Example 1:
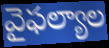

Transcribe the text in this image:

వైఫల్యాల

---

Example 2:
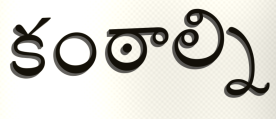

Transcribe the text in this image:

కంఠాల్ని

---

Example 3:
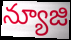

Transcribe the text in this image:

న్యూజి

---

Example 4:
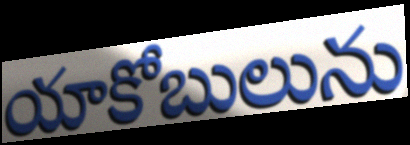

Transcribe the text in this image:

యాకోబులును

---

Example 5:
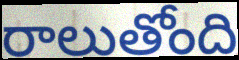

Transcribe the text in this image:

రాలుతోంది